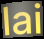
lai